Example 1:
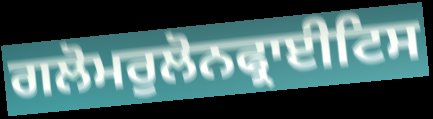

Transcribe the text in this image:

ਗਲੋਮਰੁਲੋਨਫ੍ਰਾਈਟਿਸ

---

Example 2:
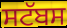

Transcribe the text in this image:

ਸਟੱਬਸ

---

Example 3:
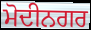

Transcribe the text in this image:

ਮੋਦੀਨਗਰ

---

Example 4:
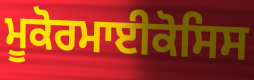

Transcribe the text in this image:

ਮੂਕੋਰਮਾਈਕੋਸਿਸ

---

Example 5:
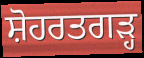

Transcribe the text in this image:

ਸ਼ੋਹਰਤਗੜ੍ਹ